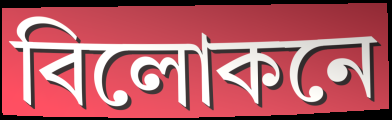
বিলোকনে